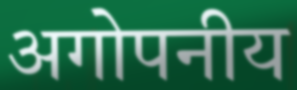
अगोपनीय